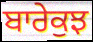
ਬਾਰੇਕੁਝ